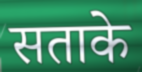
सताके